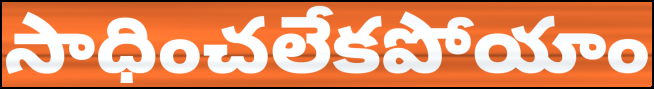
సాధించలేకపోయాం